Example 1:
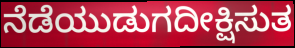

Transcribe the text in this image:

ನೆಡೆಯುಡುಗದೀಕ್ಷಿಸುತ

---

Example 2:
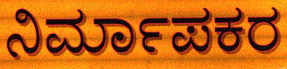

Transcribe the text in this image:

ನಿರ್ಮಾಪಕರ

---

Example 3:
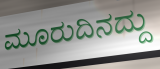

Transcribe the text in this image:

ಮೂರುದಿನದ್ದು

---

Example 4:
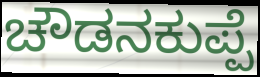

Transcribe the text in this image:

ಚೌಡನಕುಪ್ಪೆ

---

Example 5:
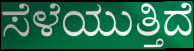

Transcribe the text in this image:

ಸೆಳೆಯುತ್ತಿದೆ